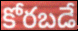
కోరబడే